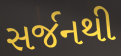
સર્જનથી